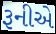
રૂનીએ